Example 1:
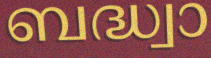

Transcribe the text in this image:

ബദ്ധ്വാ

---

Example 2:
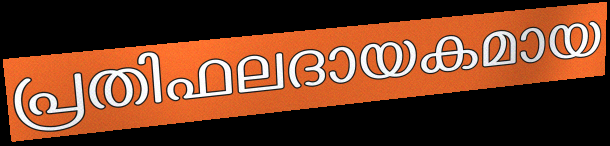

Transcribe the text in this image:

പ്രതിഫലദായകമായ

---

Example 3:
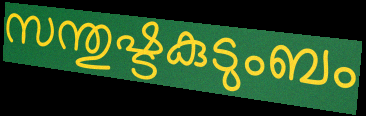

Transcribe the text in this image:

സന്തുഷ്ടകുടുംബം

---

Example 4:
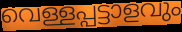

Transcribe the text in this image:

വെള്ളപ്പട്ടാളവും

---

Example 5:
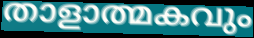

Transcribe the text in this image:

താളാത്മകവും